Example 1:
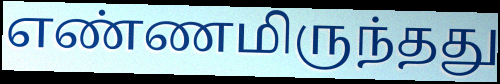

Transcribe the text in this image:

எண்ணமிருந்தது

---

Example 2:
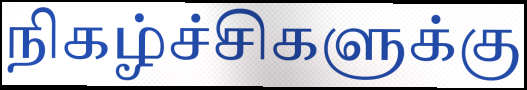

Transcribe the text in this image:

நிகழ்ச்சிகளுக்கு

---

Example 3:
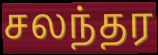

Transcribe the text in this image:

சலந்தர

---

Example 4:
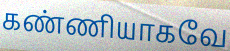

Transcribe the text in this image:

கண்ணியாகவே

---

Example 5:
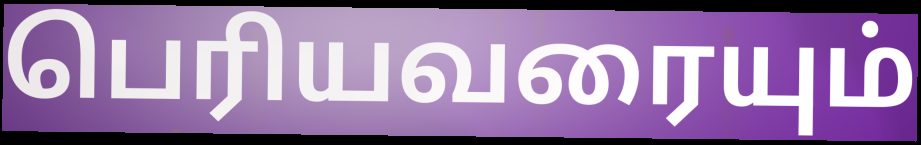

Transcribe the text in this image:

பெரியவரையும்